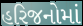
હરિજનોમાં